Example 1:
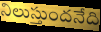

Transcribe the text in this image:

నిలుస్తుందనేది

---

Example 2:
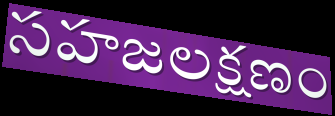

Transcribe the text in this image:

సహజలక్షణం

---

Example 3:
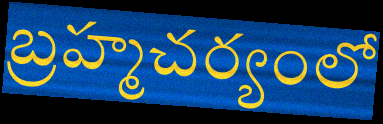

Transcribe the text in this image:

బ్రహ్మచర్యంలో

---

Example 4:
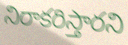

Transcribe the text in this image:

నిరాకరిస్తారని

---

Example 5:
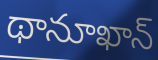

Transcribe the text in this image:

థానూఖాన్